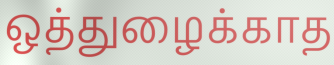
ஒத்துழைக்காத